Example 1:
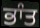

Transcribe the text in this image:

ਭਾੰਤ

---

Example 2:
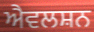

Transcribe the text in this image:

ਐਵਲਸ਼ਨ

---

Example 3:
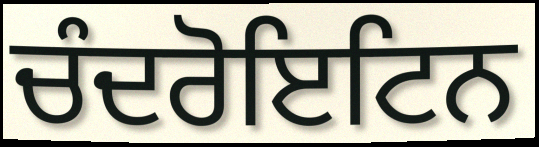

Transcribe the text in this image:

ਚੰਦਰੋਇਟਿਨ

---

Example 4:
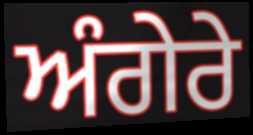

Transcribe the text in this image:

ਅੰਗੇਰੇ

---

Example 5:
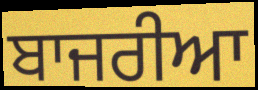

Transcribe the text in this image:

ਬਾਜਰੀਆ